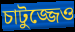
চাটুজ্জেও